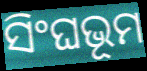
ସିଂଘଭୂମ